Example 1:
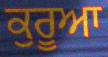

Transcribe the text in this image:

ਕੁਰੂਆ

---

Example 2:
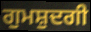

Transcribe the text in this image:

ਗੁਮਸ਼ੁਦਗੀ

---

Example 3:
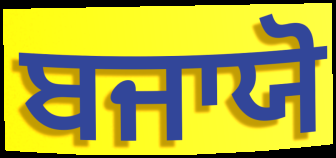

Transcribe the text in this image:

ਬਜਾਯੋ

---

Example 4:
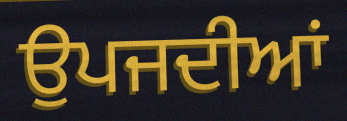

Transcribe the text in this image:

ਉਪਜਦੀਆਂ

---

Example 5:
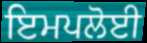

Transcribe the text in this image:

ਇਮਪਲੋਈ